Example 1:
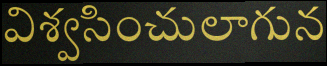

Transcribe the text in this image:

విశ్వసించులాగున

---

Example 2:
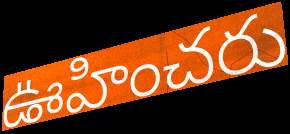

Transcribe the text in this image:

ఊహించరు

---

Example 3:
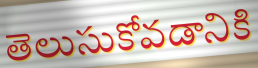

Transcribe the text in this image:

తెలుసుకోవడానికి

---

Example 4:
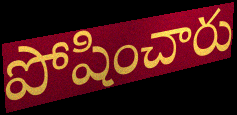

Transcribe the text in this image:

పోషించారు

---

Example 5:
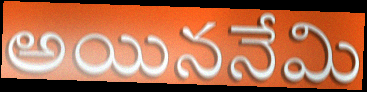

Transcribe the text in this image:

అయిననేమి